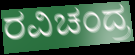
ರವಿಚಂದ್ರ